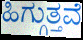
ಹಿಗ್ಗುತ್ತವೆ